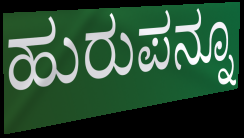
ಹುರುಪನ್ನೂ